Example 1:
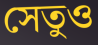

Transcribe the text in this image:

সেতুও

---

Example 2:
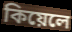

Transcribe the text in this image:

কিয়েলে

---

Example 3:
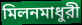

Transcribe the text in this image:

মিলনমাধুরী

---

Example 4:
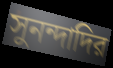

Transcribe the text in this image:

সুনন্দাদির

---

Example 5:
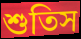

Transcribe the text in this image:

শুতিস